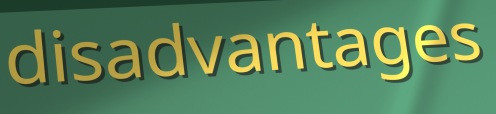
disadvantages